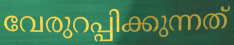
വേരുറപ്പിക്കുന്നത്